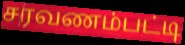
சரவணம்பட்டி